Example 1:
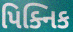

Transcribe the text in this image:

પિક્નિક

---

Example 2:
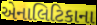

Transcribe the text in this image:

એનાલિટિકાના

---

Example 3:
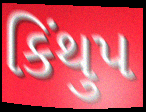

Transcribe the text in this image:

કિંથુપ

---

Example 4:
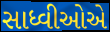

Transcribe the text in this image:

સાધ્વીઓએ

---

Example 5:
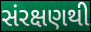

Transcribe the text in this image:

સંરક્ષણથી